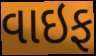
વાઇફ